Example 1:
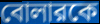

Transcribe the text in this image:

বোলারকে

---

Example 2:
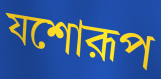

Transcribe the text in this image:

যশোরূপ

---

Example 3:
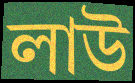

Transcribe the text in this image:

লাউ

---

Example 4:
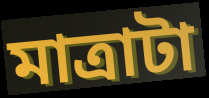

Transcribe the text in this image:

মাত্রাটা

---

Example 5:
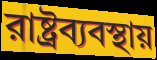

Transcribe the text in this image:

রাষ্ট্রব্যবস্থায়